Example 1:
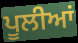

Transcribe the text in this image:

ਪੂਲੀਆਂ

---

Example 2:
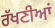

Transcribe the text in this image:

ਰੱਖਣੀਆਂ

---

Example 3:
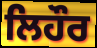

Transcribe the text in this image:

ਲਿਹੌਰ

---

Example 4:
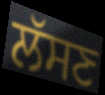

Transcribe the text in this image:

ਲੱਸਣ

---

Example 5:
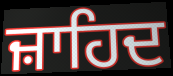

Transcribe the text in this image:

ਜ਼ਾਹਿਦ